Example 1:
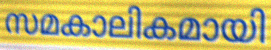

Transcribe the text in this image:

സമകാലികമായി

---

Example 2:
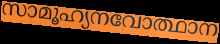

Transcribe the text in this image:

സാമൂഹ്യനവോത്ഥാന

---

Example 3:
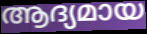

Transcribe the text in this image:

ആദ്യമായ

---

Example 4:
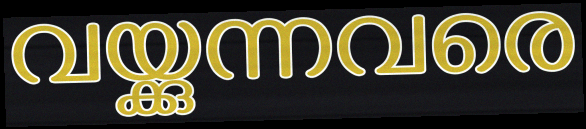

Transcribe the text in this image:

വയ്ക്കുന്നവരെ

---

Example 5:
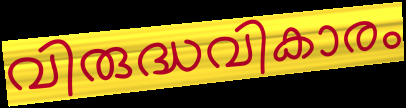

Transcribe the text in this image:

വിരുദ്ധവികാരം